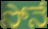
సోనే